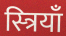
स्‍त्रियाँ